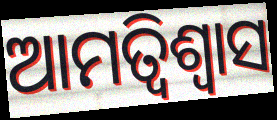
ଆମତ୍ବିଶ୍ୱାସ